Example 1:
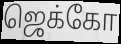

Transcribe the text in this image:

ஜெக்கோ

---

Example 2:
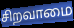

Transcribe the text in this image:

சிறவாமை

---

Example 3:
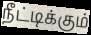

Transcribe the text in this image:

நீட்டிக்கும்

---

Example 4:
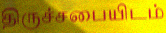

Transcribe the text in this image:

திருச்சபையிடம்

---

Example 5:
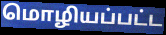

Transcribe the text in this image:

மொழியப்பட்ட